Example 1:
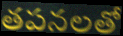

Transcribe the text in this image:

తపనలతో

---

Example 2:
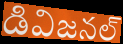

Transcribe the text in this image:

డివిజనల్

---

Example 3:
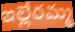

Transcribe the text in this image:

ఇల్లేరమ్మ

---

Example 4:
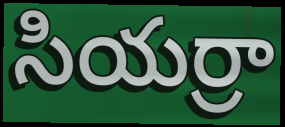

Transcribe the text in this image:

సియర్రా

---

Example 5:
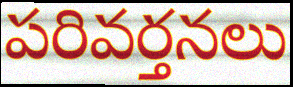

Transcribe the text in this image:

పరివర్తనలు